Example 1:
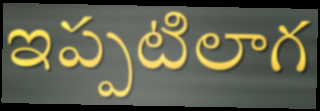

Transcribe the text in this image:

ఇప్పటిలాగ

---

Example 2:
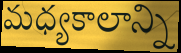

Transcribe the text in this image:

మధ్యకాలాన్ని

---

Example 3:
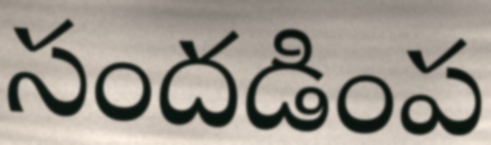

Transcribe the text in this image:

సందడింప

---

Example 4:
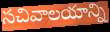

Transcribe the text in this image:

సచివాలయాన్ని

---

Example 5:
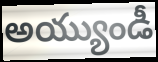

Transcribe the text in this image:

అయ్యుండీ